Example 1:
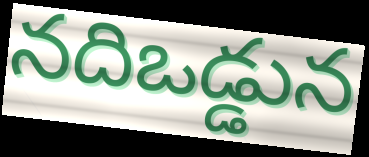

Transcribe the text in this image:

నదిఒడ్డున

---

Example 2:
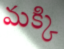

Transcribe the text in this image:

మక్కి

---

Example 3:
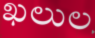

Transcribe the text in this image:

ఖలుల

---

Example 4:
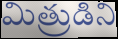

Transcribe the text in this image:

మిత్రుడిని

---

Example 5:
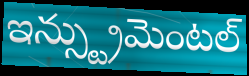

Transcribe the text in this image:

ఇన్స్ట్రుమెంటల్